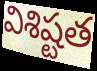
విశిష్టత